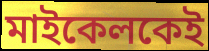
মাইকেলকেই